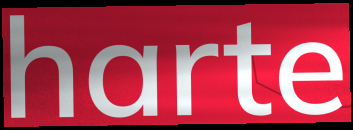
harte